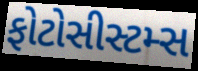
ફોટોસીસ્ટમ્સ